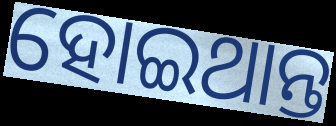
ହୋଇଥାନ୍ତ